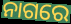
ନାଗରେ